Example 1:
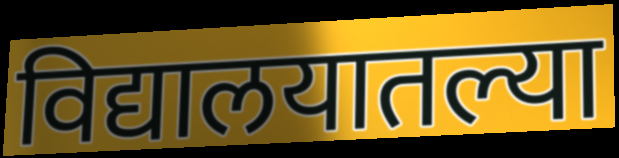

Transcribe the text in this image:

विद्यालयातल्या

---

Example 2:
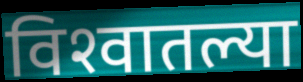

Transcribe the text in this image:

विश्वातल्या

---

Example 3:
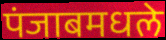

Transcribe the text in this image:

पंजाबमधले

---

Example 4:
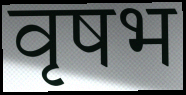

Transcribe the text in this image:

वृषभ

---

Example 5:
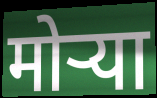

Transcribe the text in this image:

मोऱ्या